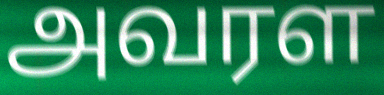
அவரள